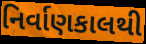
નિર્વાણકાલથી